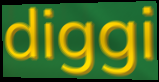
diggi